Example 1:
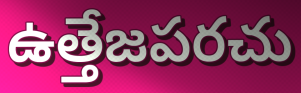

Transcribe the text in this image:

ఉత్తేజపరచు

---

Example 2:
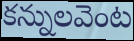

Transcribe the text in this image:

కన్నులవెంట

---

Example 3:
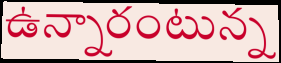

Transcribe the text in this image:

ఉన్నారంటున్న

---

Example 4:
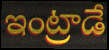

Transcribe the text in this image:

ఇంట్రాడే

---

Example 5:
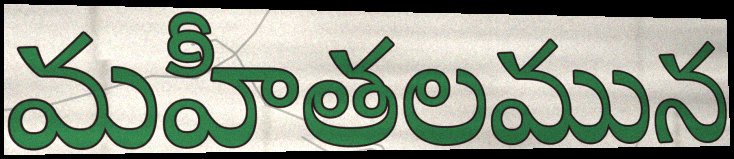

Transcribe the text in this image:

మహీతలమున